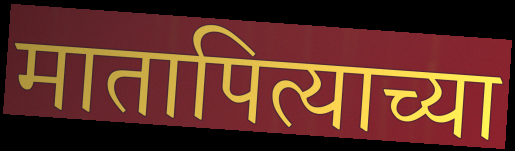
मातापित्याच्या